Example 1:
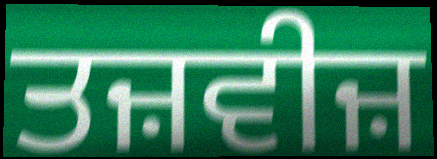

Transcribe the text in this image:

ਤਜ਼ਵੀਜ਼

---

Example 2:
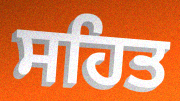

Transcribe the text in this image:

ਸਹਿਤ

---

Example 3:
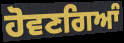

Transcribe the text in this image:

ਹੋਵਣਗਿਆੰ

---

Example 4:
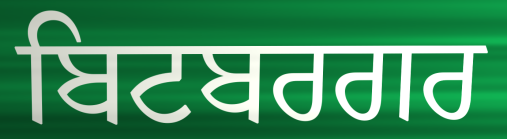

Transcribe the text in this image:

ਬਿਟਬਰਗਰ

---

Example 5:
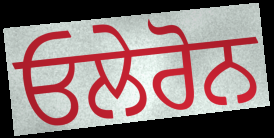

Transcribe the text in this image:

ਓਲੇਰੋਨ